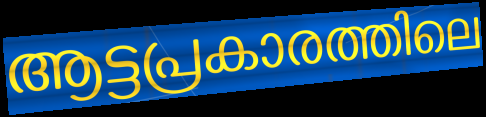
ആട്ടപ്രകാരത്തിലെ